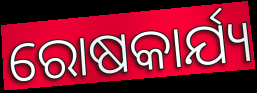
ରୋଷକାର୍ଯ୍ୟ